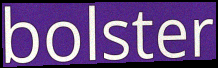
bolster